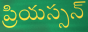
ప్రియస్సన్